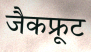
जैकफ्रूट